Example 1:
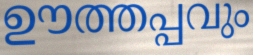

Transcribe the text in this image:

ഊത്തപ്പവും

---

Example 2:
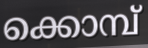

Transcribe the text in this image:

ക്കൊമ്പ്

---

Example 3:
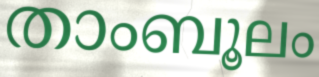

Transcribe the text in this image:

താംബൂലം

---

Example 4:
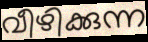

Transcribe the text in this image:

വീഴിക്കുന്ന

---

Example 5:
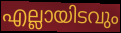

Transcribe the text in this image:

എല്ലായിടവും